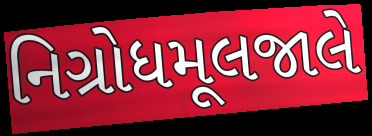
નિગ્રોધમૂલજાલે